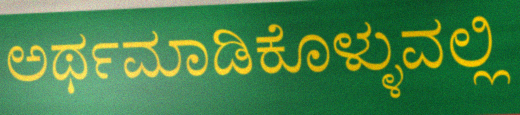
ಅರ್ಥಮಾಡಿಕೊಳ್ಳುವಲ್ಲಿ